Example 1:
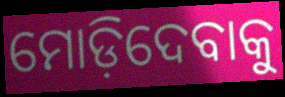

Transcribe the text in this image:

ମୋଡ଼ିଦେବାକୁ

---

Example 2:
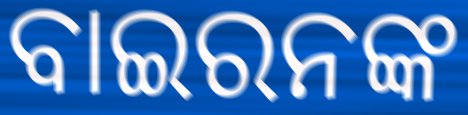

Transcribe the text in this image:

ବାଇରନଙ୍କ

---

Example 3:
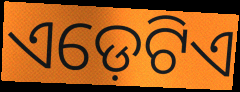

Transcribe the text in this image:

ଏଡ଼େଟିଏ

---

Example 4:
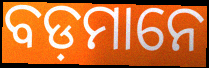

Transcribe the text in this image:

ବଡ଼ମାନେ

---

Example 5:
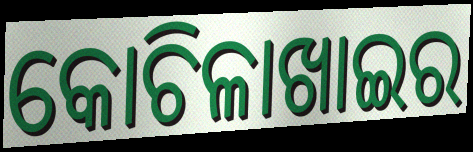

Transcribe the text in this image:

କୋଚିଳାଖାଇର